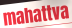
mahattva